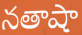
నతాషా